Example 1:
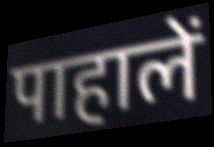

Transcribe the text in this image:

पाहालें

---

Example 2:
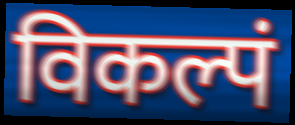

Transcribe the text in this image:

विकल्पं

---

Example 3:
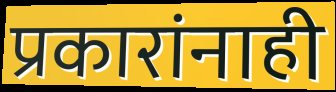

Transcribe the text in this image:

प्रकारांनाही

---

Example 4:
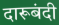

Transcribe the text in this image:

दारूबंदी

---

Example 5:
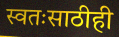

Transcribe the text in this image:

स्वतःसाठीही